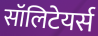
सॉलिटेयर्स